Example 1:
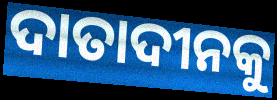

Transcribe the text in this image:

ଦାତାଦୀନକୁ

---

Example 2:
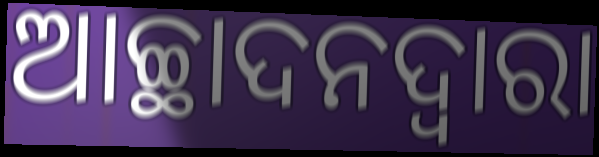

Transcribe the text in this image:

ଆଚ୍ଛାଦନଦ୍ୱାରା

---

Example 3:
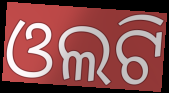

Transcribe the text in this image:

ଓଲଟି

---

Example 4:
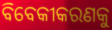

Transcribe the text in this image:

ବିବେକୀକରଣକୁ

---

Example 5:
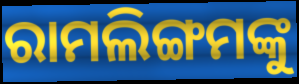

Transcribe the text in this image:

ରାମଲିଙ୍ଗମଙ୍କୁ